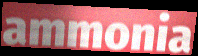
ammonia